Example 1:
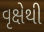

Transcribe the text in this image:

વૃક્ષેથી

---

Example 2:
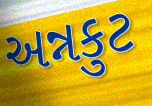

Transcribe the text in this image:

અન્નકુટ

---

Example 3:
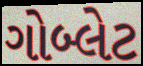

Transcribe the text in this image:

ગોબ્લેટ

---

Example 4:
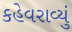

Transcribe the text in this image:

કહેવરાવ્યું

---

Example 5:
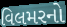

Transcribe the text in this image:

વિલમરનો